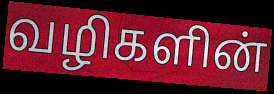
வழிகளின்